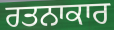
ਰਤਨਾਕਾਰ